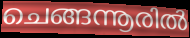
ചെങ്ങന്നൂരിൽ